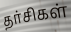
தர்சிகள்